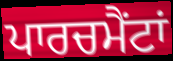
ਪਾਰਚਮੈਂਟਾਂ